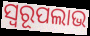
ସ୍ବରୂପଲାଭ